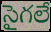
సైగలే